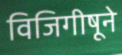
विजिगीषूने